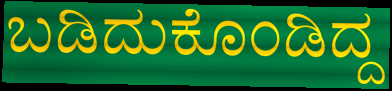
ಬಡಿದುಕೊಂಡಿದ್ದ